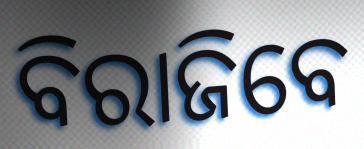
ବିରାଜିବେ